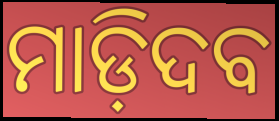
ମାଡ଼ିଦବ